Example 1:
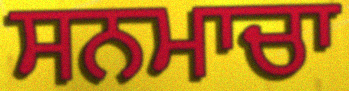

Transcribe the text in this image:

ਸਨਮਾਚਾ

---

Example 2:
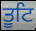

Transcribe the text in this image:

ਤੂਟਿ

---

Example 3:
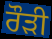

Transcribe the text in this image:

ਰੌੜੀ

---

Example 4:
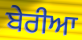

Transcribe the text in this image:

ਬੇਰੀਆ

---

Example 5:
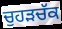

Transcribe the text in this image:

ਚੁਹੜਚੱਕ